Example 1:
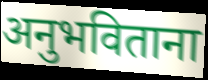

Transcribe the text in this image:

अनुभविताना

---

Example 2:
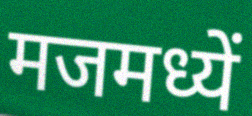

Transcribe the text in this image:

मजमध्यें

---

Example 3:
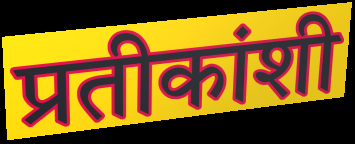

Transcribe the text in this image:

प्रतीकांशी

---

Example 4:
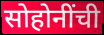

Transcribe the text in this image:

सोहोनींची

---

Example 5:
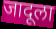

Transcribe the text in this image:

जादूला